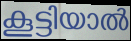
കൂട്ടിയാൽ